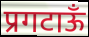
प्रगटाऊँ